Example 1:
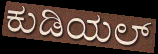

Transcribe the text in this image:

ಕುಡಿಯಲ್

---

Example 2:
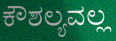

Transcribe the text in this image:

ಕೌಶಲ್ಯವಲ್ಲ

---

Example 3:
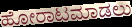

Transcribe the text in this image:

ಹೋರಾಟಮಾಡಲು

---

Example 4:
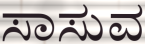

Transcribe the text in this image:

ಸಾಸುವ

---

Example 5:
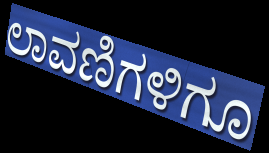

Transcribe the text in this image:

ಲಾವಣಿಗಳಿಗೂ